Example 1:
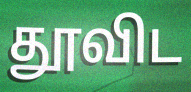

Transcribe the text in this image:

தூவிட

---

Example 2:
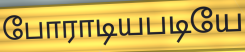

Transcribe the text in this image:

போராடியபடியே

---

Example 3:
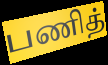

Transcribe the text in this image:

பணித்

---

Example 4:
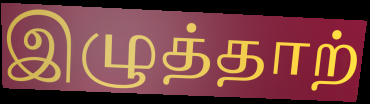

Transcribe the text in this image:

இழுத்தாற்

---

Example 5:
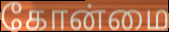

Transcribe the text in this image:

கோன்மை